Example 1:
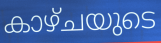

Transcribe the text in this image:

കാഴ്ചയുടെ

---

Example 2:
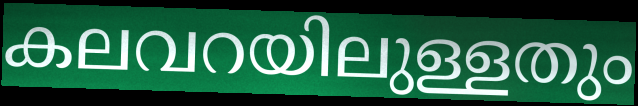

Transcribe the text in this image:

കലവറയിലുള്ളതും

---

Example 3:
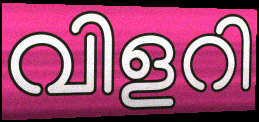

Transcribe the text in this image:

വിളറി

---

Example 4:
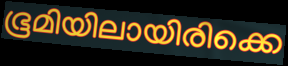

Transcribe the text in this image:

ഭൂമിയിലായിരിക്കെ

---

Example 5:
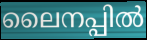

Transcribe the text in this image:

ലൈനപ്പിൽ